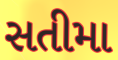
સતીમા